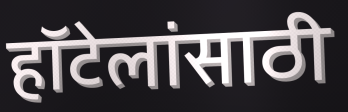
हॉटेलांसाठी